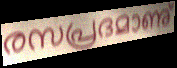
രസപ്രദമാണു്